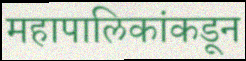
महापालिकांकडून